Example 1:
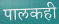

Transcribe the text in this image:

पालकही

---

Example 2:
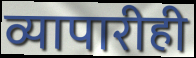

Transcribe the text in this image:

व्यापारीही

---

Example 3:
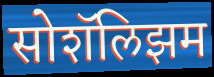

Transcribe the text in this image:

सोशॅलिझम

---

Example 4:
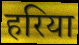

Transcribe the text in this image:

हरिया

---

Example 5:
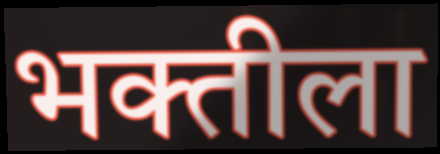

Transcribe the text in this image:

भक्तीला